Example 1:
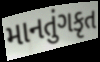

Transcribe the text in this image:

માનતુંગકૃત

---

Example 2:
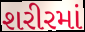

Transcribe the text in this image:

શરીરમાં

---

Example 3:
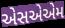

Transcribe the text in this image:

એસએએમ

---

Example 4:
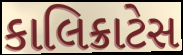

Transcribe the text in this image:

કાલિક્રાટેસ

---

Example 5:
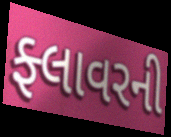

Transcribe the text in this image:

ફ્લાવરની